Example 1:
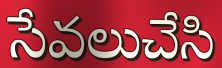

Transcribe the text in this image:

సేవలుచేసి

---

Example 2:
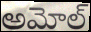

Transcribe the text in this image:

అమోల్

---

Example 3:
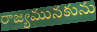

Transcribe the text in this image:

రాజ్యమునకును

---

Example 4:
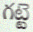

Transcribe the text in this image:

గట్టె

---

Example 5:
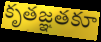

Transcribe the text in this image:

కృతజ్ఞతకూ